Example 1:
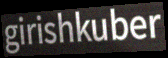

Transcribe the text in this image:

girishkuber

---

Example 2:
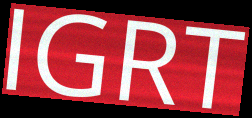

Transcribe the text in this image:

IGRT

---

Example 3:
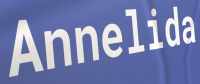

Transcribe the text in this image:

Annelida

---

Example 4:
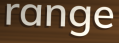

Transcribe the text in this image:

range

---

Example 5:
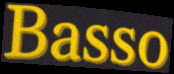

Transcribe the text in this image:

Basso